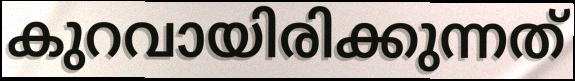
കുറവായിരിക്കുന്നത്